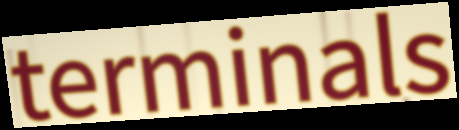
terminals